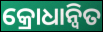
କ୍ରୋଧାନ୍ୱିତ